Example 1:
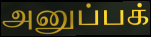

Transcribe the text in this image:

அனுப்பக்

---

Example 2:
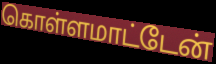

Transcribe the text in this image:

கொள்ளமாட்டேன்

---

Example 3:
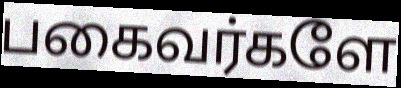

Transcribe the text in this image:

பகைவர்களே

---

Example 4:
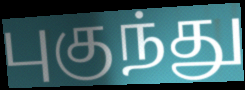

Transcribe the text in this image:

புகுந்து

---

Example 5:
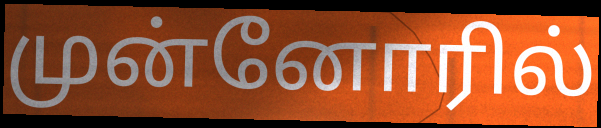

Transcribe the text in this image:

முன்னோரில்